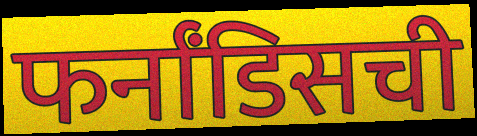
फर्नांडिसची